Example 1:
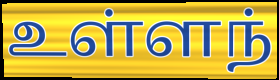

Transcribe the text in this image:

உள்ளந்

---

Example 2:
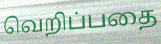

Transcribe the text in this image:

வெறிப்பதை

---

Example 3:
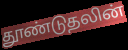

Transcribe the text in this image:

தூண்டுதலின்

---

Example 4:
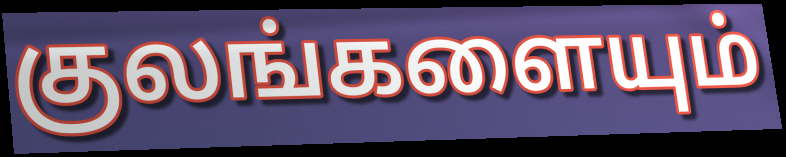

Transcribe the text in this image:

குலங்களையும்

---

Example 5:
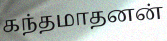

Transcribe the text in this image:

கந்தமாதனன்